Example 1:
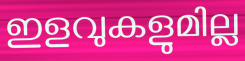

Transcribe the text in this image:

ഇളവുകളുമില്ല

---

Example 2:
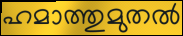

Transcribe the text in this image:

ഹമാത്തുമുതൽ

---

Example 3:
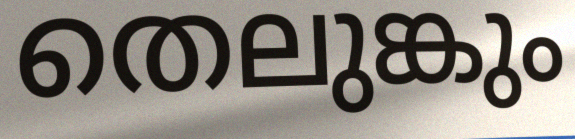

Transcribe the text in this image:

തെലുങ്കും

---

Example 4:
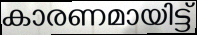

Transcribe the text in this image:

കാരണമായിട്ട്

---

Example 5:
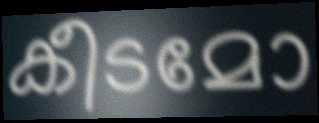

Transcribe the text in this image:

കീടമോ